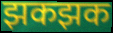
झकझक